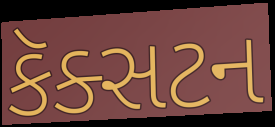
કૅક્સટન